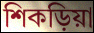
শিকড়িয়া